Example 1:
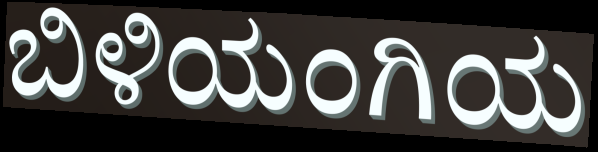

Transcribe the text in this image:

ಬಿಳಿಯಂಗಿಯ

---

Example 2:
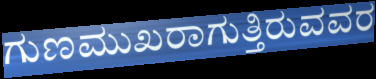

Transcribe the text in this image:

ಗುಣಮುಖರಾಗುತ್ತಿರುವವರ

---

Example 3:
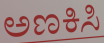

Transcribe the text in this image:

ಅಣಕಿಸಿ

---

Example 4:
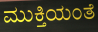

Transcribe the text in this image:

ಮುಕ್ತಿಯಂತೆ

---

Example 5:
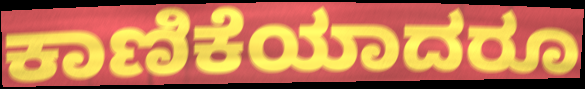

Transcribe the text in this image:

ಕಾಣಿಕೆಯಾದರೂ